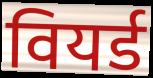
वियर्ड